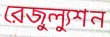
রেজুল্যুশন